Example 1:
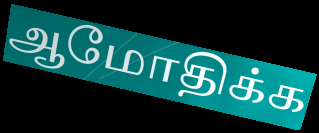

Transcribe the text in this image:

ஆமோதிக்க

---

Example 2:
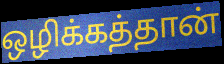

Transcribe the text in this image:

ஒழிக்கத்தான்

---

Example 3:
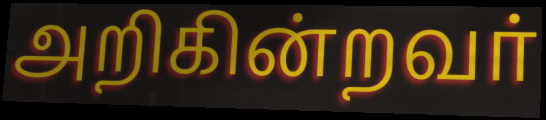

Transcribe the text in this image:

அறிகின்றவர்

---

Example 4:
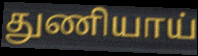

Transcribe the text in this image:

துணியாய்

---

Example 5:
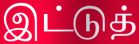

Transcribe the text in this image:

இட்டுத்